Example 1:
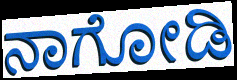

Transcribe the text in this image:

ನಾಗೋಡಿ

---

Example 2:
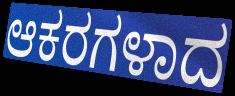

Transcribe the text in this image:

ಆಕರಗಳಾದ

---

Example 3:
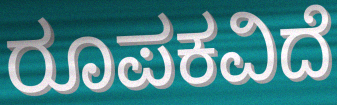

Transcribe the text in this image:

ರೂಪಕವಿದೆ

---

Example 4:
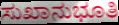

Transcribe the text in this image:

ಸುಖಾನುಭೂತಿ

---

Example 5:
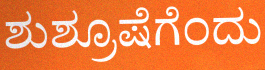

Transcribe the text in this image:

ಶುಶ್ರೂಷೆಗೆಂದು